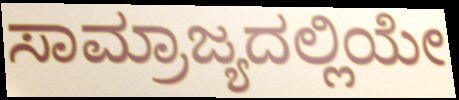
ಸಾಮ್ರಾಜ್ಯದಲ್ಲಿಯೇ